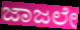
ಜಾಜಲೇ